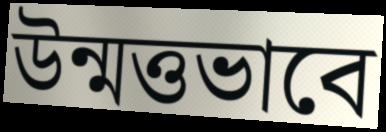
উন্মত্তভাবে